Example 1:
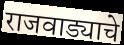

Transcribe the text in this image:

राजवाड्याचे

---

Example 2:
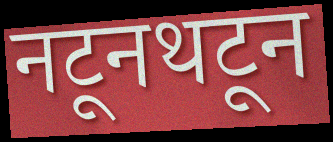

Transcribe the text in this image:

नटूनथटून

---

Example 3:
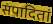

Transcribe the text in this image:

संपादितां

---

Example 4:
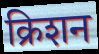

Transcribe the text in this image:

क्रिशन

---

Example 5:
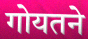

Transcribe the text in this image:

गोयतने